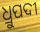
ଧ୍ରୁପଦୀ